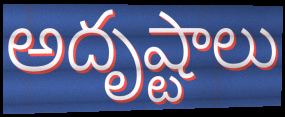
అదృష్టాలు